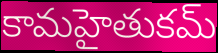
కామహైతుకమ్